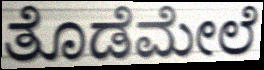
ತೊಡೆಮೇಲೆ